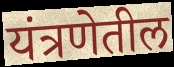
यंत्रणेतील